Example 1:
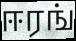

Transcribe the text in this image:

ஈரங்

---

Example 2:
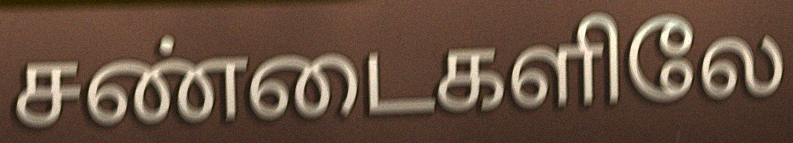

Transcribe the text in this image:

சண்டைகளிலே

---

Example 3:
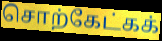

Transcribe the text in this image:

சொற்கேட்கக்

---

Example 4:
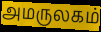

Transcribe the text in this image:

அமருலகம்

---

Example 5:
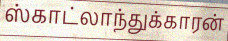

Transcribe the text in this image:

ஸ்காட்லாந்துக்காரன்